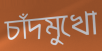
চাঁদমুখো